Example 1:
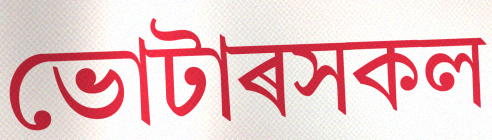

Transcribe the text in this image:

ভোটাৰসকল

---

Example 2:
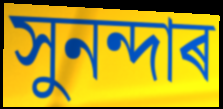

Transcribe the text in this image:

সুনন্দাৰ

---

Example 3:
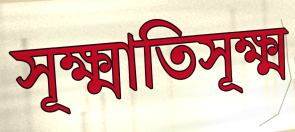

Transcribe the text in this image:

সূক্ষ্মাতিসূক্ষ্ম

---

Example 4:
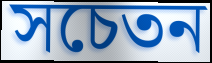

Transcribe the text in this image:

সচেতন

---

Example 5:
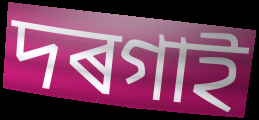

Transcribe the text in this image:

দৰগাই